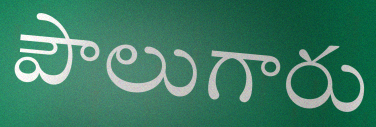
పౌలుగారు